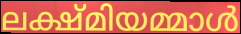
ലക്ഷ്മിയമ്മാൾ